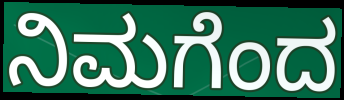
ನಿಮಗೆಂದ